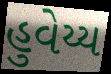
હુવેય્ય